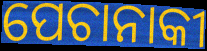
ପେଚାନାକୀ